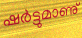
ഷർട്ടുമാണു്